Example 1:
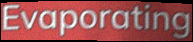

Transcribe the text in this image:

Evaporating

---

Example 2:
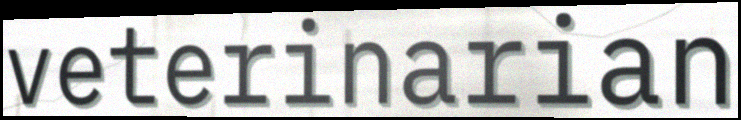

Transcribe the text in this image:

veterinarian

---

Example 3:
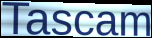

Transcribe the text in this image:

Tascam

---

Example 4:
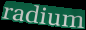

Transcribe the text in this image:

radium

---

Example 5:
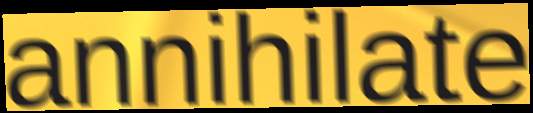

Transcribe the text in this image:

annihilate